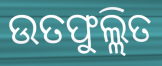
ଉତଫୁଲ୍ଲିତ